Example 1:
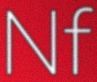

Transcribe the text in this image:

Nf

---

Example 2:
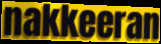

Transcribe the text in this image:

nakkeeran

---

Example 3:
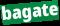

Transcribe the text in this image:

bagate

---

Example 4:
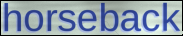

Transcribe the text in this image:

horseback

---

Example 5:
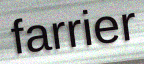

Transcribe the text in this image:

farrier